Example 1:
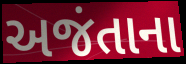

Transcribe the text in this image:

અજંતાના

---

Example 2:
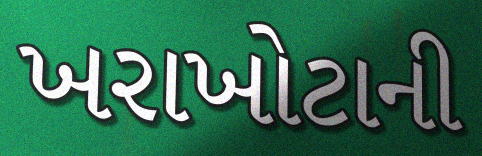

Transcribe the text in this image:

ખરાખોટાની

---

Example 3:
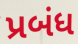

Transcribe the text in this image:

પ્રબંધ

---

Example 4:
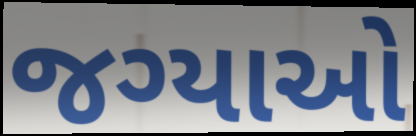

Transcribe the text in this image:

જગ્યાઓ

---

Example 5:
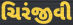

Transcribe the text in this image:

ચિરંજીવી